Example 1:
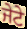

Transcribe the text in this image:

ਜੇਟੇ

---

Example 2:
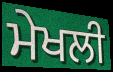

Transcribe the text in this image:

ਮੇਖਲੀ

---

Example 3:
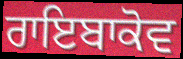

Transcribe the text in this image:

ਰਾਇਬਾਕੋਵ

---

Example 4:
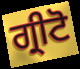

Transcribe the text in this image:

ਗ੍ਰੀਟੋ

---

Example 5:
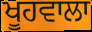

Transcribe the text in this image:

ਖੂਹਵਾਲਾ